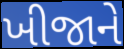
ખીજાને